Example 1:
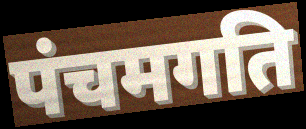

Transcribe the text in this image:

पंचमगति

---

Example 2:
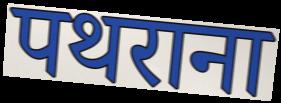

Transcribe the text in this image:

पथराना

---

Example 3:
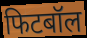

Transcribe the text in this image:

फिटबॉल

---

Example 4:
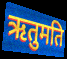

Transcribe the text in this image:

ऋतुमति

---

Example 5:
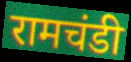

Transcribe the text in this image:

रामचंडी